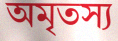
অমৃতস্য